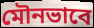
মৌনভাবে